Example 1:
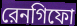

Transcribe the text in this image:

রেনগিফো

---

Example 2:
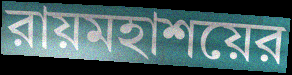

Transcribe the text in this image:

রায়মহাশয়ের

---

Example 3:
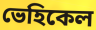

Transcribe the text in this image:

ভেহিকেল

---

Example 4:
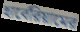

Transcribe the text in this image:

হার্বেরিয়ামের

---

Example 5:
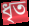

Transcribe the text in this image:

ধৃত